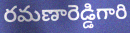
రమణారెడ్డిగారి